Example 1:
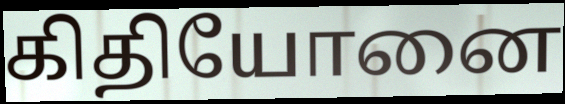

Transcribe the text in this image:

கிதியோனை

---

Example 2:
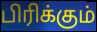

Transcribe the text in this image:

பிரிக்கும்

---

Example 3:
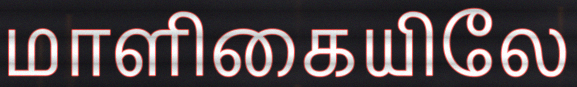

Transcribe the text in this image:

மாளிகையிலே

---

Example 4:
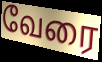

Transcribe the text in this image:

வேரை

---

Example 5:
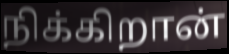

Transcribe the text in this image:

நிக்கிறான்